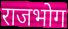
राजभोग